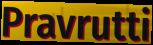
Pravrutti